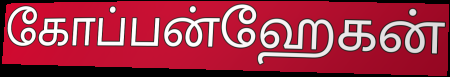
கோப்பன்ஹேகன்